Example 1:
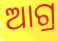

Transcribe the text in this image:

ଆଗ୍ର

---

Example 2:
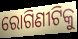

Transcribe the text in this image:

ରୋଗିଣୀଟିକୁ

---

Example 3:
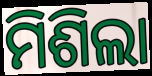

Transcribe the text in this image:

ମିଶିଲା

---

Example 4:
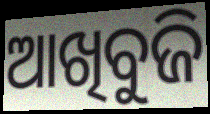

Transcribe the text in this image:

ଆଖିବୁଜି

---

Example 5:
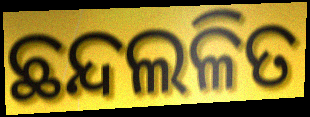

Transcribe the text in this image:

ଛନ୍ଦଲଳିତ